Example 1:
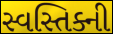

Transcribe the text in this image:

સ્વસ્તિક્ની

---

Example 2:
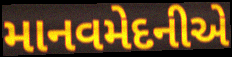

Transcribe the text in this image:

માનવમેદનીએ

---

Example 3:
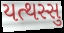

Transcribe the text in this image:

યત્થસ્સુ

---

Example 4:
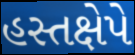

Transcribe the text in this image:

હસ્તક્ષેપે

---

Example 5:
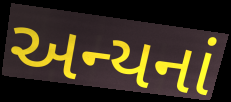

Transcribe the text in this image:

અન્યનાં